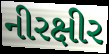
નીરક્ષીર